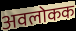
अवलोकक